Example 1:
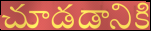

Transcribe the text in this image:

చూడడానికి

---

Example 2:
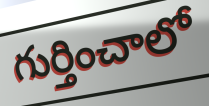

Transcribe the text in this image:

గుర్తించాలో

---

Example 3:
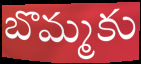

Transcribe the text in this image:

బొమ్మకు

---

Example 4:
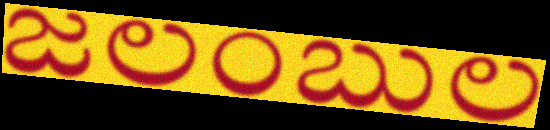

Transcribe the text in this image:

జలంబుల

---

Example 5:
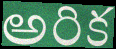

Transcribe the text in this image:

అరిక